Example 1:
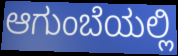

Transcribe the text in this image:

ಆಗುಂಬೆಯಲ್ಲಿ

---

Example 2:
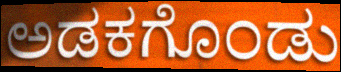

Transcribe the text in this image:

ಅಡಕಗೊಂಡು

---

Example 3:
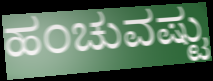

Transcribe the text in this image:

ಹಂಚುವಷ್ಟು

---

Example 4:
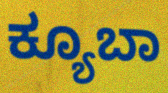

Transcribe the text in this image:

ಕ್ಯೂಬಾ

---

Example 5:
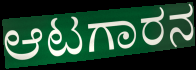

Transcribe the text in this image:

ಆಟಗಾರನ